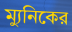
ম্যুনিকের